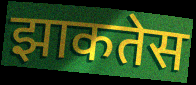
झाकतेस